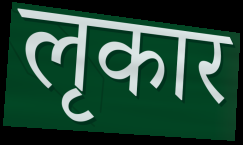
लृकार